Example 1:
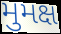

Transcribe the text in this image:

મુમક્ષ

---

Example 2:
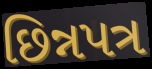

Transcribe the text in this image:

છિન્નપત્ર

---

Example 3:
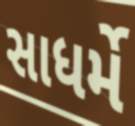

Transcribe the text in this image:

સાધર્મે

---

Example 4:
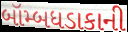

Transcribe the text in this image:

બૉમ્બધડાકાની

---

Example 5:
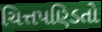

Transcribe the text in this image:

ચિત્તપણ્ડિતો